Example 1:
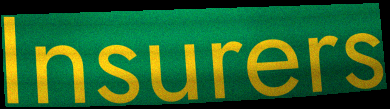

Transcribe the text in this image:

Insurers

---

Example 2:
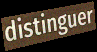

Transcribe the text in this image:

distinguer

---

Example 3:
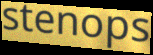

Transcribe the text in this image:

stenops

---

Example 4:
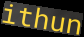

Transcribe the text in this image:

ithun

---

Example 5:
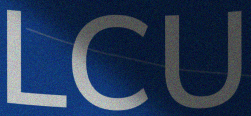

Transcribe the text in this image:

LCU